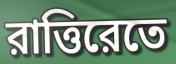
রাত্তিরেতে